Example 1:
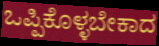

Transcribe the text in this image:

ಒಪ್ಪಿಕೊಳ್ಳಬೇಕಾದ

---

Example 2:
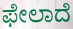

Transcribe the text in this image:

ಫೇಲಾದೆ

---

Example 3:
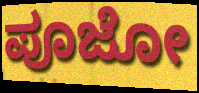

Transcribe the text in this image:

ಪೂಜೋ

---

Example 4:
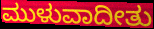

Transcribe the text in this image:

ಮುಳುವಾದೀತು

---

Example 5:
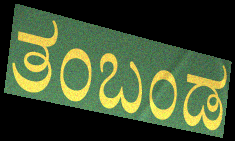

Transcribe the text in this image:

ತಂಬಂಡ